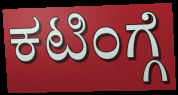
ಕಟಿಂಗ್ಗೆ